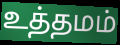
உத்தமம்